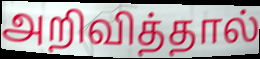
அறிவித்தால்